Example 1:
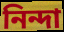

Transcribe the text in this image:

নিন্দা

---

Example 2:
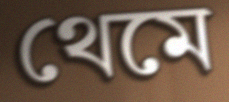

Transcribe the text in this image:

থেমে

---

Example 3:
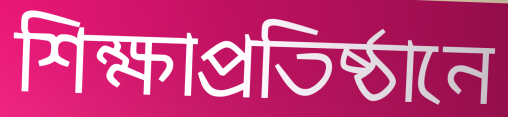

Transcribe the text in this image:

শিক্ষাপ্রতিষ্ঠানে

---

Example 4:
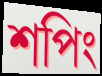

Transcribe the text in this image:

শপিং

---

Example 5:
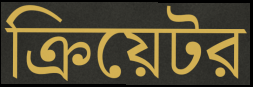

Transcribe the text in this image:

ক্রিয়েটর